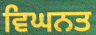
ਵਿਘਨਤ